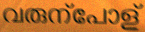
വരുന്പോള്